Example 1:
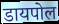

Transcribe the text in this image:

डायपोल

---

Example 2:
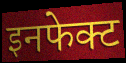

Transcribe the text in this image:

इनफेक्ट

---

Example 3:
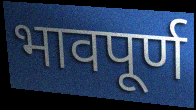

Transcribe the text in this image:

भावपूर्ण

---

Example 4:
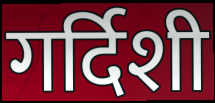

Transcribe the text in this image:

गर्दिशी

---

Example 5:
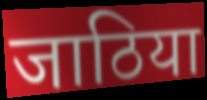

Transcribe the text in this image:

जाठिया